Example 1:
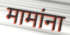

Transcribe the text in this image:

मामांना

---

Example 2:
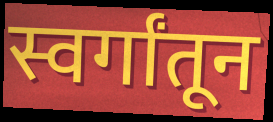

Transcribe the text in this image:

स्वर्गांतून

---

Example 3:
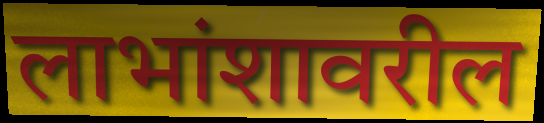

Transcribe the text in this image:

लाभांशावरील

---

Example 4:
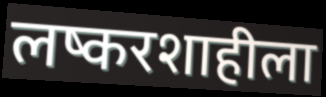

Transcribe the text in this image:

लष्करशाहीला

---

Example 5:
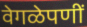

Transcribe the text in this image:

वेगळेपणीं